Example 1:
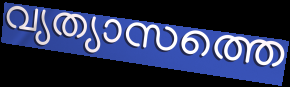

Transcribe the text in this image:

വ്യത്യാസത്തെ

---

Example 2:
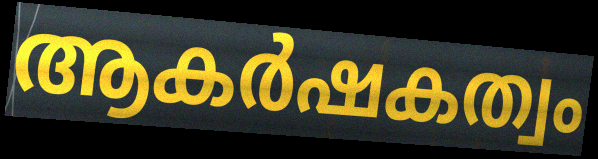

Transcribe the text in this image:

ആകർഷകത്വം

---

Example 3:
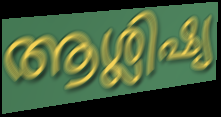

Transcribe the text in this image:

ആശ്ലിഷ്യ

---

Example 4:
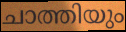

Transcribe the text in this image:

ചാത്തിയും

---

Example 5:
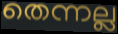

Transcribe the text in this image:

തെന്നല്ല